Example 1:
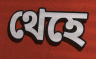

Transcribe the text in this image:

থেহে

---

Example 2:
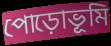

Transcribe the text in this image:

পোড়োভূমি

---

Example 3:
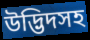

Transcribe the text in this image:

উদ্ভিদসহ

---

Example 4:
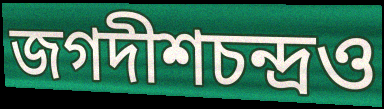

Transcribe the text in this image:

জগদীশচন্দ্রও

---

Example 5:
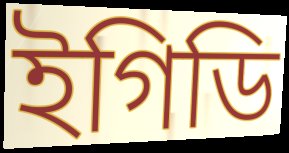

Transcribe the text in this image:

ইগিডি